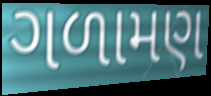
ગળામણ